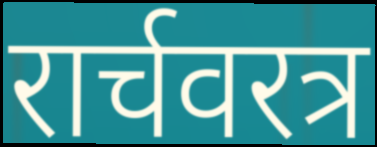
रार्चवरत्र